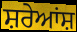
ਸ਼ਰੇਆਂਸ਼